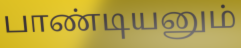
பாண்டியனும்